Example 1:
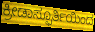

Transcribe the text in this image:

ಕ್ರೀಡಾಸ್ಫೂರ್ತಿಯಿಂದ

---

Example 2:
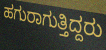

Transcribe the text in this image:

ಹಗುರಾಗುತ್ತಿದ್ದರು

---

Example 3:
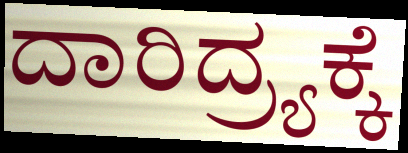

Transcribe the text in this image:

ದಾರಿದ್ರ್ಯಕ್ಕೆ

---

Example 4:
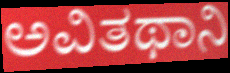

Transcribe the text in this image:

ಅವಿತಥಾನಿ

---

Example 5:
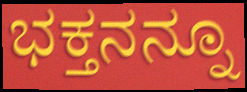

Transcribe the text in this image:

ಭಕ್ತನನ್ನೂ